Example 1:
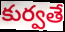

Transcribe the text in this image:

కుర్వతే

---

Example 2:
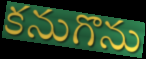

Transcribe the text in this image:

కనుగొను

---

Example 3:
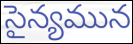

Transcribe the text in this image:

సైన్యమున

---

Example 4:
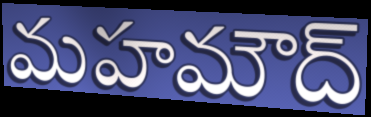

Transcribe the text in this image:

మహమౌద్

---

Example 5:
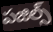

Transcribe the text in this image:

పజిల్స్